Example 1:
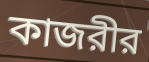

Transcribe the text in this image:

কাজরীর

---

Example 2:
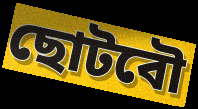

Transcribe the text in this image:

ছোটবৌ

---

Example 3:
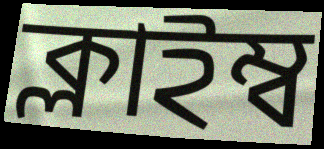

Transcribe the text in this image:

ক্লাইম্ব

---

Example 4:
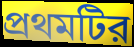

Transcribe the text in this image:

প্রথমটির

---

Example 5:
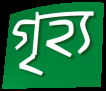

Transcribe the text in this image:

গৃহ্য